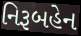
નિરૂબહેન